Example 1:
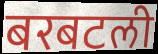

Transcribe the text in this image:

बरबटली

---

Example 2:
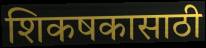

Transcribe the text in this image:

शिकषकासाठी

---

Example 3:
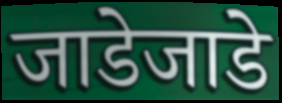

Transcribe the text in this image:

जाडेजाडे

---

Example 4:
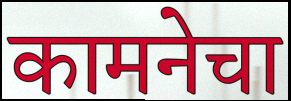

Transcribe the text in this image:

कामनेचा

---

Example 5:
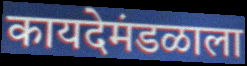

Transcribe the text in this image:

कायदेमंडळाला